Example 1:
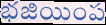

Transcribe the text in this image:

భజియింప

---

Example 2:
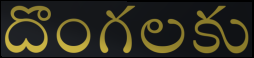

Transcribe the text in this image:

దొంగలకు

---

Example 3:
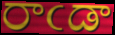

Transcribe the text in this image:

రాఁడా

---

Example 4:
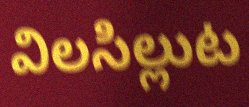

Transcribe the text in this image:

విలసిల్లుట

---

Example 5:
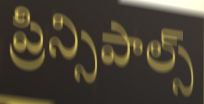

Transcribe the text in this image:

ప్రిన్సిపాల్స్